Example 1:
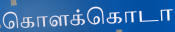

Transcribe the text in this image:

கொளக்கொடா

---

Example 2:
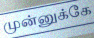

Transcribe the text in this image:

முன்னுக்கே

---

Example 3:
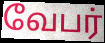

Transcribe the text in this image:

வேபர்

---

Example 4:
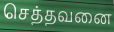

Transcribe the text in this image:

செத்தவனை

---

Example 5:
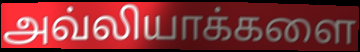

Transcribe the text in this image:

அவ்லியாக்களை